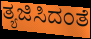
ತ್ಯಜಿಸಿದಂತೆ